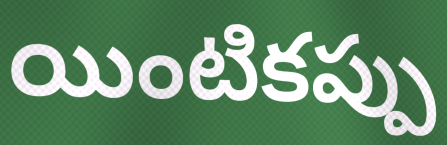
యింటికప్పు